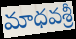
మాధవశ్రీ